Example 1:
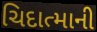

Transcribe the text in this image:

ચિદાત્માની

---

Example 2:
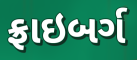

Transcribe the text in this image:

ફ્રાઇબર્ગ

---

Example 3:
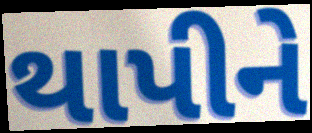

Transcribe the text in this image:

થાપીને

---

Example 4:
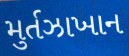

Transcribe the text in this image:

મુર્તઝાખાન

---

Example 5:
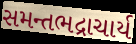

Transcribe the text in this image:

સમન્તભદ્રાચાર્ય